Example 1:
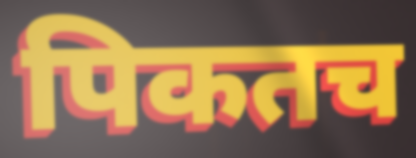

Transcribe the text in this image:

पिकतच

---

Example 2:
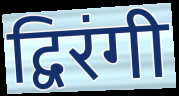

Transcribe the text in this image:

द्विरंगी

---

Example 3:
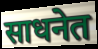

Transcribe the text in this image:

साधनेत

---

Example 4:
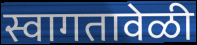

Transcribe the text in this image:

स्वागतावेळी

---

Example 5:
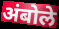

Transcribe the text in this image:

अंबोले